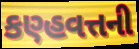
કણ્હવત્તની